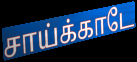
சாய்க்காடே